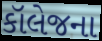
કૉલેજના